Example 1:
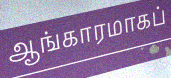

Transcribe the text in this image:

ஆங்காரமாகப்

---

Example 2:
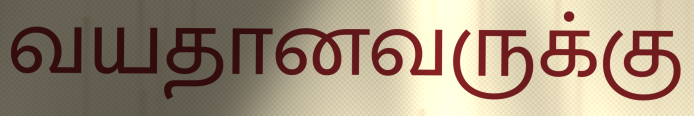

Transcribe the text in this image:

வயதானவருக்கு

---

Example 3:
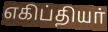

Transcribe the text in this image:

எகிப்தியர்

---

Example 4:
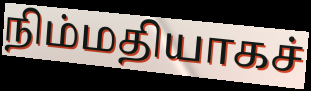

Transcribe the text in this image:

நிம்மதியாகச்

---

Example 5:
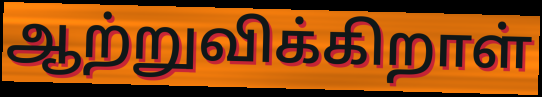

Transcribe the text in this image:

ஆற்றுவிக்கிறாள்